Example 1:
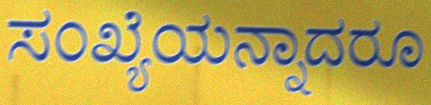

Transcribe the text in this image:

ಸಂಖ್ಯೆಯನ್ನಾದರೂ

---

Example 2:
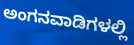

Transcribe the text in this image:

ಅಂಗನವಾಡಿಗಳಲ್ಲಿ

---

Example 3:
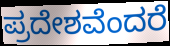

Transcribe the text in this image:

ಪ್ರದೇಶವೆಂದರೆ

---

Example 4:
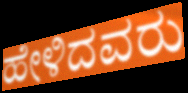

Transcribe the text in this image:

ಹೇಳಿದವರು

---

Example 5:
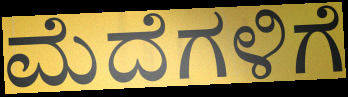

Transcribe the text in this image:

ಮೆದೆಗಳಿಗೆ